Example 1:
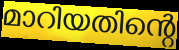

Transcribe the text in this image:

മാറിയതിന്റെ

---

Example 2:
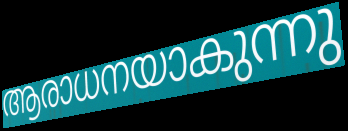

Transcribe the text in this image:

ആരാധനയാകുന്നു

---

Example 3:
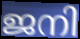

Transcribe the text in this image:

ജനി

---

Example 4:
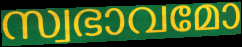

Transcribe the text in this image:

സ്വഭാവമോ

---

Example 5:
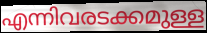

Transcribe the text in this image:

എന്നിവരടക്കമുള്ള